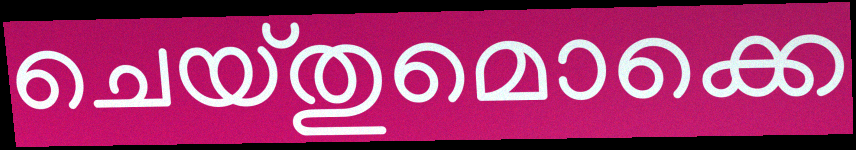
ചെയ്തുമൊക്കെ